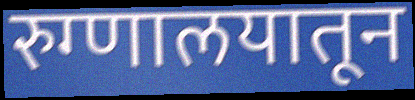
रुग्णालयातून